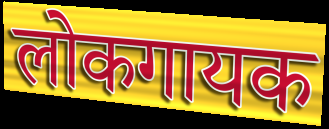
लोकगायक